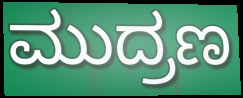
ಮುದ್ರಣ